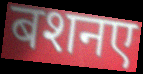
बशनए